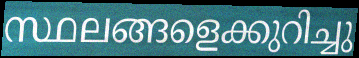
സ്ഥലങ്ങളെക്കുറിച്ചു